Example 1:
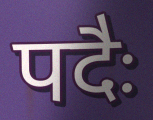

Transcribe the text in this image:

पदैः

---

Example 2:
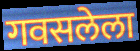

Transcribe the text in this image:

गवसलेला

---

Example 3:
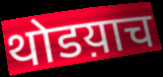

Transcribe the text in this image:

थोडय़ाच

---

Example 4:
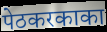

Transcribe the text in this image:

पेठकरकाका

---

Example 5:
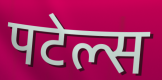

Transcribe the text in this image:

पटेल्स